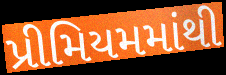
પ્રીમિયમમાંથી